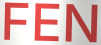
FEN